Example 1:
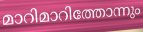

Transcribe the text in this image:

മാറിമാറിത്തോന്നും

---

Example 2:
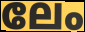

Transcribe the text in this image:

ലേം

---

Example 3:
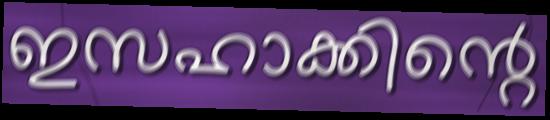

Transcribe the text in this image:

ഇസഹാക്കിന്റെ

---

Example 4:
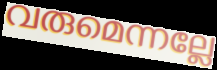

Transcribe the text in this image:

വരുമെന്നല്ലേ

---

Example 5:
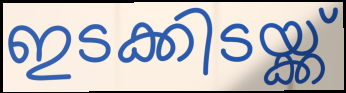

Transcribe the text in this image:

ഇടക്കിടയ്ക്ക്